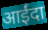
आईंदा